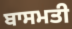
ਬਾਸਮਤੀ